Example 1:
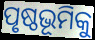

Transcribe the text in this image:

ପୃଷ୍ଠଭୂମିକୁ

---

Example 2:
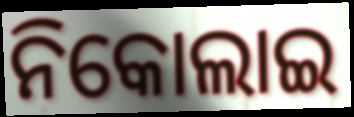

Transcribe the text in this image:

ନିକୋଲାଇ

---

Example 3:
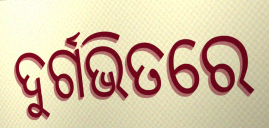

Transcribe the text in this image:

ଦୁର୍ଗଭିତରେ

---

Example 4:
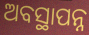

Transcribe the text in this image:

ଅବସ୍ଥାପନ୍ନ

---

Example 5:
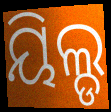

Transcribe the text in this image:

ୟିଲ୍ଡ